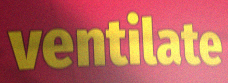
ventilate